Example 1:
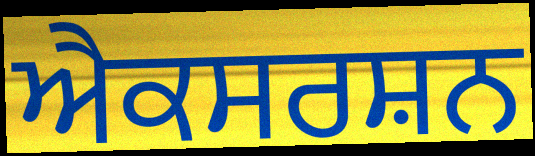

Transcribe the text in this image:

ਐਕਸਰਸ਼ਨ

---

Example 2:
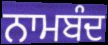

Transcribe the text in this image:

ਨਾਮਬੰਦ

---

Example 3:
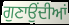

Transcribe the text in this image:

ਗੁਣਾਉਂਦੀਆਂ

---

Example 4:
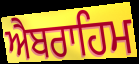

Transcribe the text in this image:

ਐਬਰਾਹਿਮ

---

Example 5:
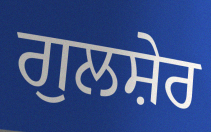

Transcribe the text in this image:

ਗੁਲਸ਼ੇਰ